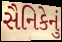
સૈનિકેનું